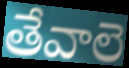
తేవాలె